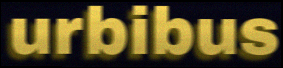
urbibus